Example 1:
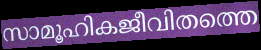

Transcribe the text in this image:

സാമൂഹികജീവിതത്തെ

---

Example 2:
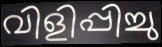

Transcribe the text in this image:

വിളിപ്പിച്ചു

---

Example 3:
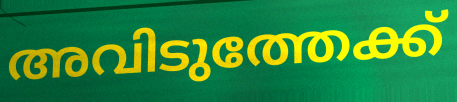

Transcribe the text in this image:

അവിടുത്തേക്ക്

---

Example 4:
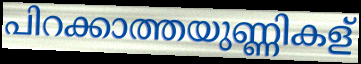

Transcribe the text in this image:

പിറക്കാത്തയുണ്ണികള്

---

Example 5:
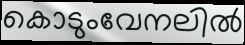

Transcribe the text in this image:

കൊടുംവേനലിൽ